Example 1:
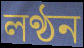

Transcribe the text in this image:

লণ্ঠন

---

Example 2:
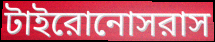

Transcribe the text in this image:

টাইরোনোসরাস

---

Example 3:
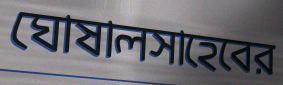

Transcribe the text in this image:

ঘোষালসাহেবের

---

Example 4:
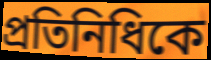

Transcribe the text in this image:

প্রতিনিধিকে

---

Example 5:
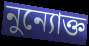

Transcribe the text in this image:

নুন্যোক্ত